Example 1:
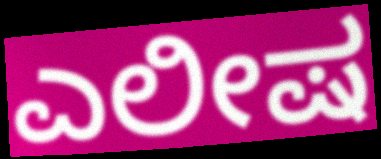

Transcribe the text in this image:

ಎಲೀಷ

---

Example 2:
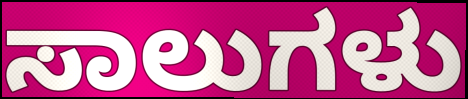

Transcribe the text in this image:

ಸಾಲುಗಳು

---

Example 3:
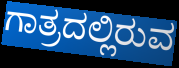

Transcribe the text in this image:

ಗಾತ್ರದಲ್ಲಿರುವ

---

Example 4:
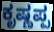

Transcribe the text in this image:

ಕೃಷ್ಣಪ್ಪ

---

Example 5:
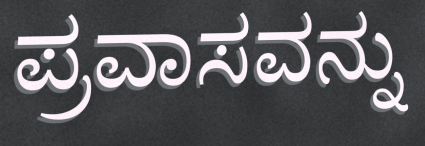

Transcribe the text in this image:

ಪ್ರವಾಸವನ್ನು